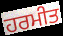
ਹਰਮੀਤ